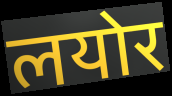
लयोर